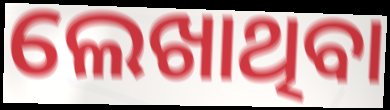
ଲେଖାଥିବା